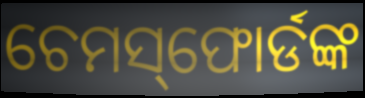
ଚେମସ୍‌ଫୋର୍ଡଙ୍କ